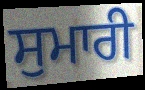
ਸੁਮਾਰੀ